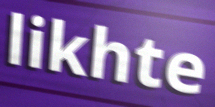
likhte